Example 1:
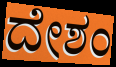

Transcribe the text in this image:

ದೇಶಂ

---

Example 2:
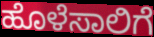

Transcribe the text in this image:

ಹೊಳೆಸಾಲಿಗೆ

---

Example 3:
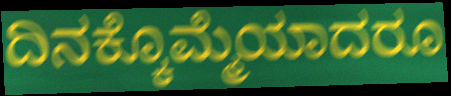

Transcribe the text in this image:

ದಿನಕ್ಕೊಮ್ಮೆಯಾದರೂ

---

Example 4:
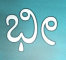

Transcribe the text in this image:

ಭೀ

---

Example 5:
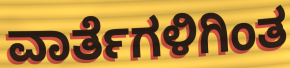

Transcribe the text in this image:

ವಾರ್ತೆಗಳಿಗಿಂತ